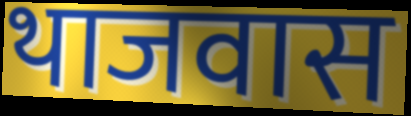
थाजवास